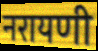
नरायणी